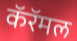
कॅरॅमल